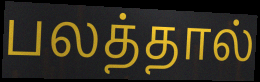
பலத்தால்